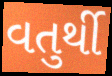
વતુર્થી